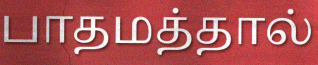
பாதமத்தால்